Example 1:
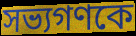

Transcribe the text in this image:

সভ্যগণকে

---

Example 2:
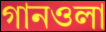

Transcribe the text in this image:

গানওলা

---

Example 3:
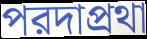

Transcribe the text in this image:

পরদাপ্রথা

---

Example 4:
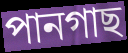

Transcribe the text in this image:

পানগাছ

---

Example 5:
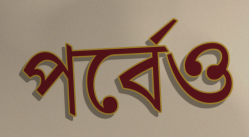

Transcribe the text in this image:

পর্বেও